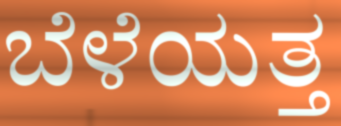
ಬೆಳೆಯತ್ತ